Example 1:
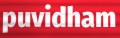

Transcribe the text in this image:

puvidham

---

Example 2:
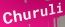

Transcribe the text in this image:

Churuli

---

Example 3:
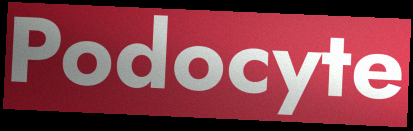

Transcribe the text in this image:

Podocyte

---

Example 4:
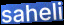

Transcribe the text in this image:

saheli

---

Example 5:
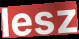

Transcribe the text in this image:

lesz